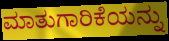
ಮಾತುಗಾರಿಕೆಯನ್ನು